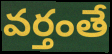
వర్తంతే